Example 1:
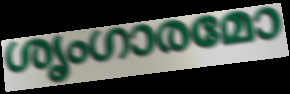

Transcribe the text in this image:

ശൃംഗാരമോ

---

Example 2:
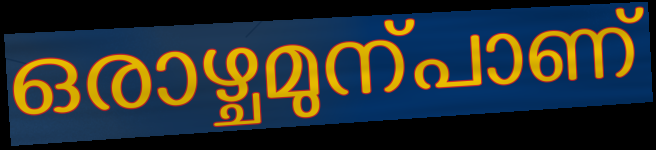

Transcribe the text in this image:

ഒരാഴ്ചമുന്പാണ്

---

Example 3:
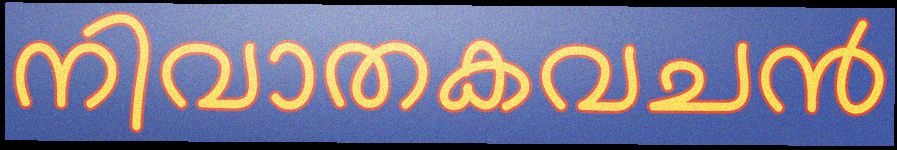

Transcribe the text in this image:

നിവാതകവചൻ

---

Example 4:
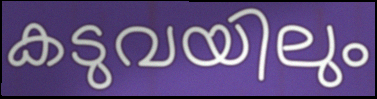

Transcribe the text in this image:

കടുവയിലും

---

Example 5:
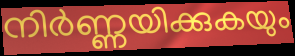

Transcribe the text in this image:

നിർണ്ണയിക്കുകയും